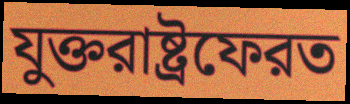
যুক্তরাষ্ট্রফেরত